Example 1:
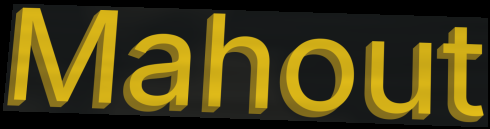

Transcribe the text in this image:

Mahout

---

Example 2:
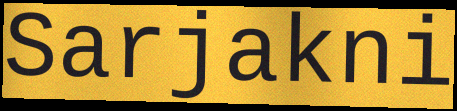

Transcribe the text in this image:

Sarjakni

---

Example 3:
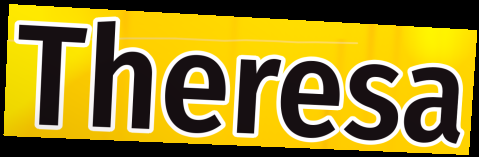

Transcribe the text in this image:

Theresa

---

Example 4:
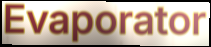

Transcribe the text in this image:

Evaporator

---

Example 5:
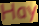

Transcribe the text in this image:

Hay